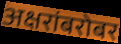
अक्षरांबरोबर